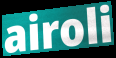
airoli